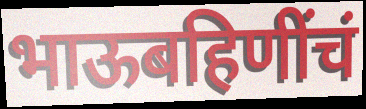
भाऊबहिणींचं